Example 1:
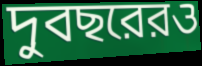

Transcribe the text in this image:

দুবছরেরও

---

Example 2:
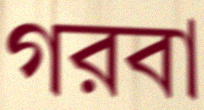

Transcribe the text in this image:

গরবা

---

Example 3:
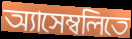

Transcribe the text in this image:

অ্যাসেম্বলিতে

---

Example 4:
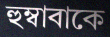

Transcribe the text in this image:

হুম্বাবাকে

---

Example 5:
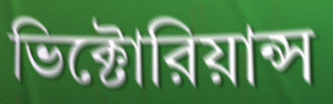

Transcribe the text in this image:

ভিক্টোরিয়ান্স